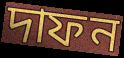
দাফন